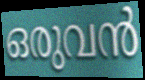
ഒരുവൻ